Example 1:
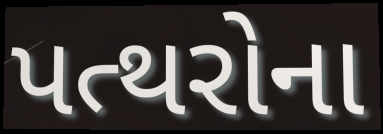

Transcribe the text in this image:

પત્થરોના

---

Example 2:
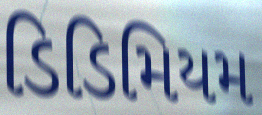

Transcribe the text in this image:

ડિડિમિયમ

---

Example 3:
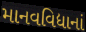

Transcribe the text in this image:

માનવવિદ્યાનાં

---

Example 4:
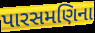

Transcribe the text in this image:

પારસમણિના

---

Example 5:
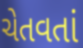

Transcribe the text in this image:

ચેતવતાં